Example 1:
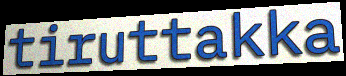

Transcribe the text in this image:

tiruttakka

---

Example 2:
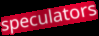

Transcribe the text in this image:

speculators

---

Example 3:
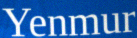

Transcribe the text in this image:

Yenmur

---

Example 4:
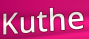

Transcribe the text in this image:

Kuthe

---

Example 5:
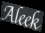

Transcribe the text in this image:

Aleek